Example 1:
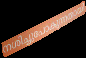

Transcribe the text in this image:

നശിച്ചുപോകുന്നതായി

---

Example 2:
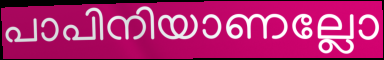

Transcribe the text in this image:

പാപിനിയാണല്ലോ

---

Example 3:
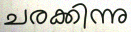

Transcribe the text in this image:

ചരക്കിന്നു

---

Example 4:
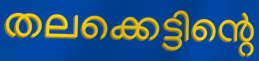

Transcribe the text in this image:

തലക്കെട്ടിന്റെ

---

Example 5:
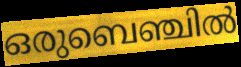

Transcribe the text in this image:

ഒരുബെഞ്ചിൽ